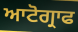
ਆਟੋਗ੍ਰਾਫ